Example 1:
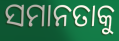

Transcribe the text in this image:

ସମାନତାକୁ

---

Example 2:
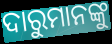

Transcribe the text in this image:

ଦାରୁମାନଙ୍କୁ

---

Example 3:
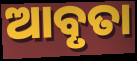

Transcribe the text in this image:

ଆବୃତା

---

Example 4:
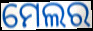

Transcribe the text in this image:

ମେଲର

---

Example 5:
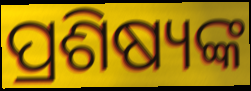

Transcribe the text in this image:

ପ୍ରଶିଷ୍ୟଙ୍କ